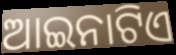
ଆଇନାଟିଏ